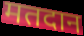
मतदान